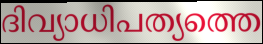
ദിവ്യാധിപത്യത്തെ